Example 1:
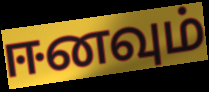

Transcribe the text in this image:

ஈனவும்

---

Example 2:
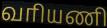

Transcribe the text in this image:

வரியணி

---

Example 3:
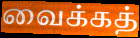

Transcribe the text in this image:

வைக்கத்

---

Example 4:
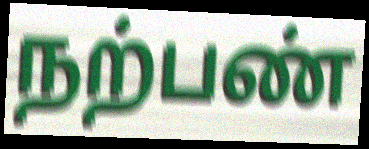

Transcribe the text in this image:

நற்பண்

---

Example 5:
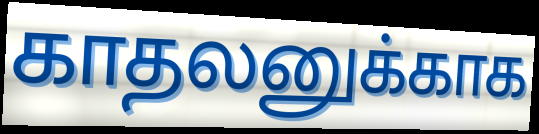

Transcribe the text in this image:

காதலனுக்காக